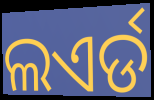
ଲଏର୍ଡ